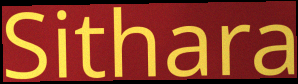
Sithara